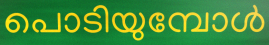
പൊടിയുമ്പോൾ